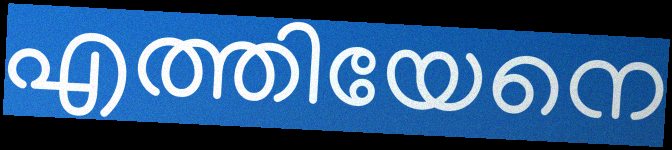
എത്തിയേനെ